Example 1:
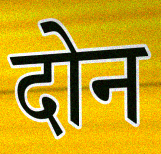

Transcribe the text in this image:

दोन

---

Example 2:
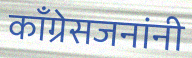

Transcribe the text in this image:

काँग्रेसजनांनी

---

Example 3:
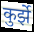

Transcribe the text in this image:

कुर्झे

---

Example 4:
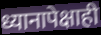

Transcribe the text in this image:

ध्यानापेक्षाही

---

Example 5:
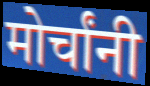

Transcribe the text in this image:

मोर्चांनी